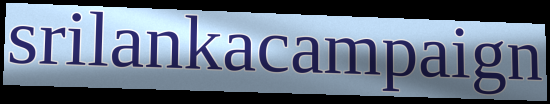
srilankacampaign